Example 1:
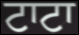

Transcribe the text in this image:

ਟਾਟਾ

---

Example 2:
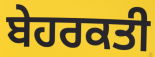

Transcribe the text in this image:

ਬੇਹਰਕਤੀ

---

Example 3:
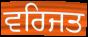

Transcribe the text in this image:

ਵਰਿਜਤ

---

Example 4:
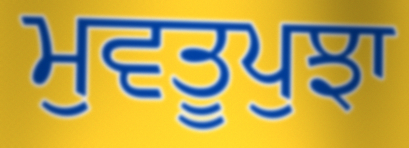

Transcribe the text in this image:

ਮੁਵਤੂਪੁਝਾ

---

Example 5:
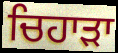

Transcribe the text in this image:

ਚਿਹਾੜਾ